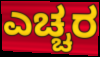
ಎಚ್ಚರ